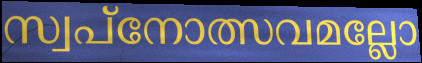
സ്വപ്നോത്സവമല്ലോ